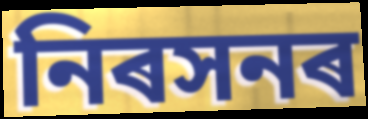
নিৰসনৰ